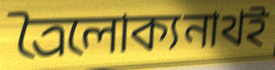
ত্রৈলোক্যনাথই